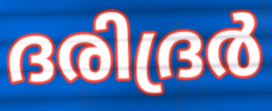
ദരിദ്രർ